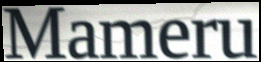
Mameru